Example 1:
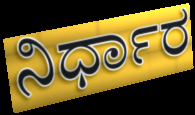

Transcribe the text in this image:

ನಿರ್ಧಾರ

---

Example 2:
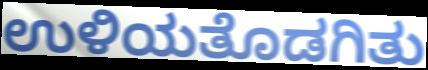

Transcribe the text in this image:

ಉಳಿಯತೊಡಗಿತು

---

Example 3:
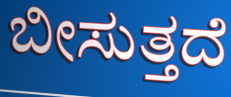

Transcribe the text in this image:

ಬೀಸುತ್ತದೆ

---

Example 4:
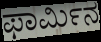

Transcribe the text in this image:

ಫಾರ್ಮಿನ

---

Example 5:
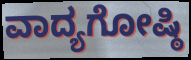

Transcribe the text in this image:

ವಾದ್ಯಗೋಷ್ಠಿ